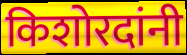
किशोरदांनी